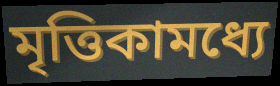
মৃত্তিকামধ্যে